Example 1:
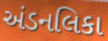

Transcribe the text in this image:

અંડનલિકા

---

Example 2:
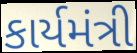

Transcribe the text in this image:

કાર્યમંત્રી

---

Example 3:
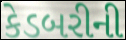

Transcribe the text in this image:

કેડબરીની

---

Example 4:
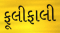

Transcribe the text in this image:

ફૂલીફાલી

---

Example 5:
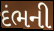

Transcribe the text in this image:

દંભની